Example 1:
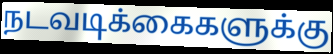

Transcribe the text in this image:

நடவடிக்கைகளுக்கு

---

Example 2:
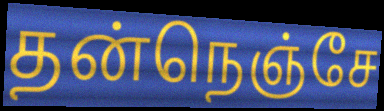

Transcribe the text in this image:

தன்நெஞ்சே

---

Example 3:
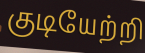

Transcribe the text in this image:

குடியேற்றி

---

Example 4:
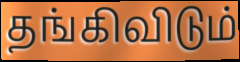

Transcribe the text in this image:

தங்கிவிடும்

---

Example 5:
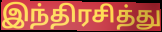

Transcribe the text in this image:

இந்திரசித்து